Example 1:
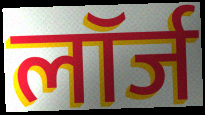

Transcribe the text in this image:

लॉर्ज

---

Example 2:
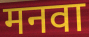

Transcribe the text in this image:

मनवा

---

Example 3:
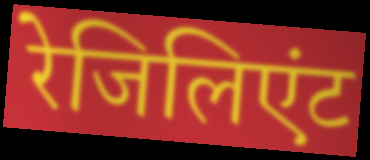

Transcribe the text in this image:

रेजिलिएंट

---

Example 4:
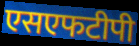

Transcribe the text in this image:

एसएफटीपी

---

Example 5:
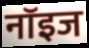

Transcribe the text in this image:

नॉइज